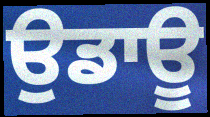
ਉਡਾਊ